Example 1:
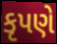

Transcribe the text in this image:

કૃપણે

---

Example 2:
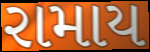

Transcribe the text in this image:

રામાય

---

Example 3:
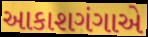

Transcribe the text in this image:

આકાશગંગાએ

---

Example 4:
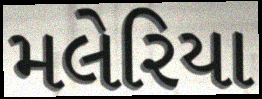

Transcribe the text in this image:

મલેરિયા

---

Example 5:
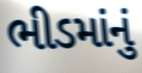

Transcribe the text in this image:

ભીડમાંનું